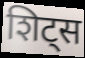
शिट्स